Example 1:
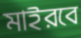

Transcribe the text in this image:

মাইরবে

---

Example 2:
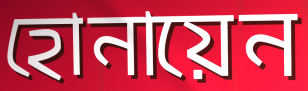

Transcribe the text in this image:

হোনায়েন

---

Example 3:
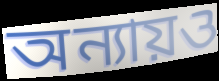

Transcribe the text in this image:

অন্যায়ও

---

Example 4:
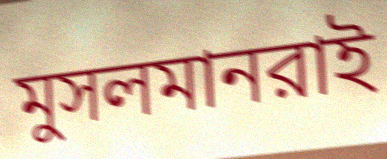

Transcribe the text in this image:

মুসলমানরাই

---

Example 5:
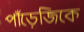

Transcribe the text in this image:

পাঁড়েজিকে